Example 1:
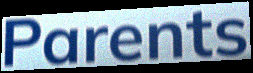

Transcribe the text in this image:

Parents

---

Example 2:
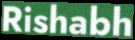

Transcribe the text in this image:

Rishabh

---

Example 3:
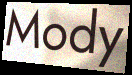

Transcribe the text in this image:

Mody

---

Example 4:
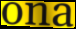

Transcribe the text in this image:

ona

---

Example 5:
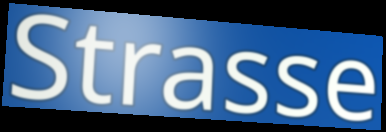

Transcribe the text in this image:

Strasse